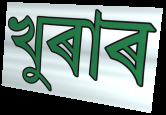
খুৰাৰ